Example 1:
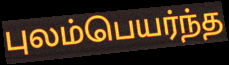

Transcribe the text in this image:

புலம்பெயர்ந்த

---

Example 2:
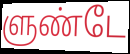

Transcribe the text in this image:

ளுண்டே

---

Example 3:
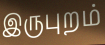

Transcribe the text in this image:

இருபுறம்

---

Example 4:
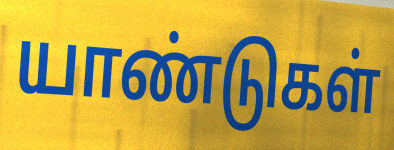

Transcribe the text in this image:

யாண்டுகள்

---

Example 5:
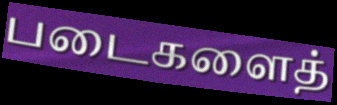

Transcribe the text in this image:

படைகளைத்